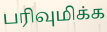
பரிவுமிக்க